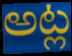
అట్ల